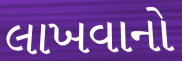
લાખવાનો